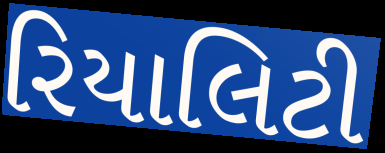
રિયાલિટી